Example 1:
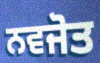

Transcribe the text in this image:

ਨਵਜੋਤ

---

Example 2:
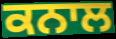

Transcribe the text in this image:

ਕਨਾਲ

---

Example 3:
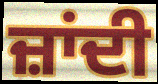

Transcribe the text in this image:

ਜ਼ਾਂਦੀ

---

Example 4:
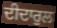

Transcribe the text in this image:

ਦੀਦਾਰੁਲ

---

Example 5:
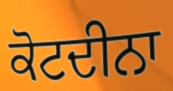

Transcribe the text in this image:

ਕੋਟਦੀਨਾ